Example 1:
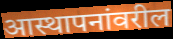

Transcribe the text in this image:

आस्थापनांवरील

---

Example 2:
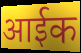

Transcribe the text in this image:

आईक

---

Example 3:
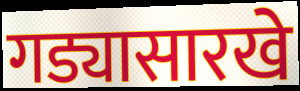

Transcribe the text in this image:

गड्यासारखे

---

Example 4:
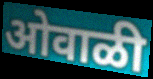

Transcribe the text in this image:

ओवाळी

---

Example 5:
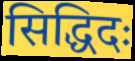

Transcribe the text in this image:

सिद्धिदः